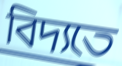
বিদ্যতে